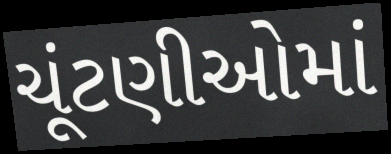
ચૂંટણીઓમાં